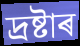
দ্ৰষ্টাৰ